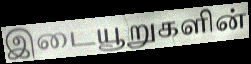
இடையூறுகளின்